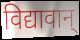
विद्यावान्